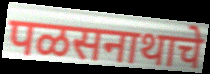
पळसनाथाचे